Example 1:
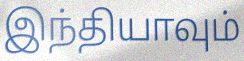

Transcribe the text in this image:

இந்தியாவும்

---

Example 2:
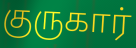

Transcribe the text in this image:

குருகார்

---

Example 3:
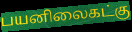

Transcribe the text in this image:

பயனிலைகட்கு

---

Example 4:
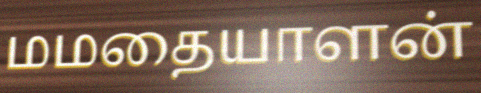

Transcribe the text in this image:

மமதையாளன்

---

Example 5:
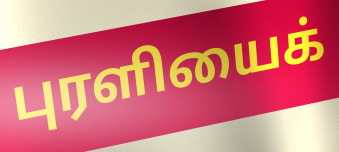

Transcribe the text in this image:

புரளியைக்